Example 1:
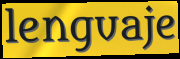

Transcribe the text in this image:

lenguaje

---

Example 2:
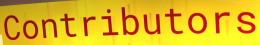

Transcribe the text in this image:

Contributors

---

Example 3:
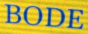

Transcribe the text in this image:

BODE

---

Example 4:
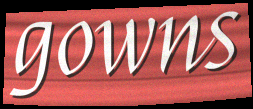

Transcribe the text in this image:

gowns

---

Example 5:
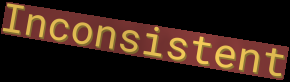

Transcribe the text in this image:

Inconsistent